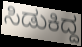
ಸಿಡುಕಿದ್ದ